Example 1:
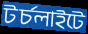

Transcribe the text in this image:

টর্চলাইটে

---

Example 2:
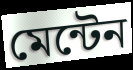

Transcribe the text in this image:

মেন্টেন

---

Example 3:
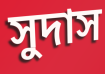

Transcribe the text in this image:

সুদাস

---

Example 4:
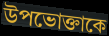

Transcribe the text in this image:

উপভোক্তাকে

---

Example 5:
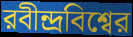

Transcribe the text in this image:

রবীন্দ্রবিশ্বের